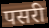
पसरी